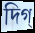
দিগ্